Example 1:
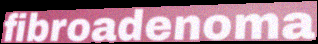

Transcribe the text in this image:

fibroadenoma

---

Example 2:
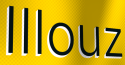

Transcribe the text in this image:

Illouz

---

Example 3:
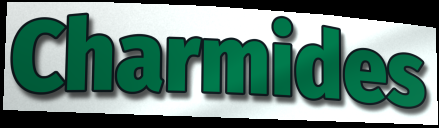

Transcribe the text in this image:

Charmides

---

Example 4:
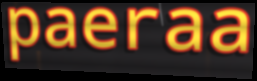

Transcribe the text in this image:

paeraa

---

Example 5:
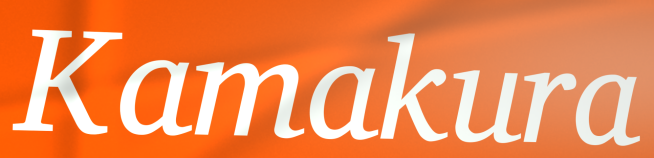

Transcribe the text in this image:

Kamakura